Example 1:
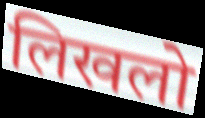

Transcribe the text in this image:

लिखलो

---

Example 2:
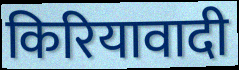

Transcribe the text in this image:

किरियावादी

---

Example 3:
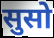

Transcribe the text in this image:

सुसो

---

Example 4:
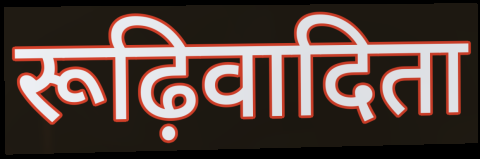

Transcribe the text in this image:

रूढ़िवादिता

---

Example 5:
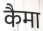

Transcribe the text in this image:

कैमा